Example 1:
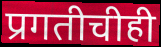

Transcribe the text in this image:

प्रगतीचीही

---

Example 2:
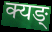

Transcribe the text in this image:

क्यङ्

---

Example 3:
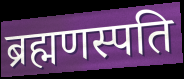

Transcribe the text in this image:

ब्रह्मणस्पति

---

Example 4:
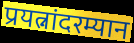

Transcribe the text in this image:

प्रयत्नांदरम्यान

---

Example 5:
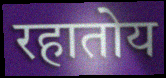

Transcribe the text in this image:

रहातोय